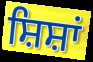
ਸ਼ਿਸ਼ਾਂ